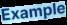
Example